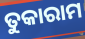
ତୁକାରାମ